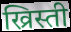
ख्रिस्ती